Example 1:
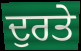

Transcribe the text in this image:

ਦੁਰਤੇ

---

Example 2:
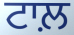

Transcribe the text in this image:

ਟਾਲ਼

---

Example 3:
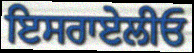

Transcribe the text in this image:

ਇਸਰਾਏਲੀਓ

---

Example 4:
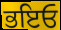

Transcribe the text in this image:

ਭਇਓ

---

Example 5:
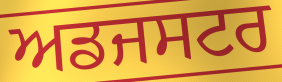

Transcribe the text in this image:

ਅਡਜਸਟਰ